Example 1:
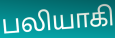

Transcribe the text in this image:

பலியாகி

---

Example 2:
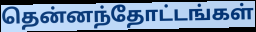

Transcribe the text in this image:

தென்னந்தோட்டங்கள்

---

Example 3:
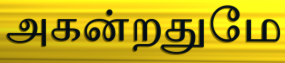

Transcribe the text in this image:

அகன்றதுமே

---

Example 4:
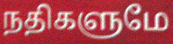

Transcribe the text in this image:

நதிகளுமே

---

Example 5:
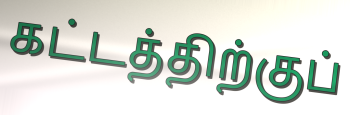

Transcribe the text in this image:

கட்டத்திற்குப்